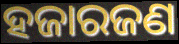
ହଜାରଜଣ